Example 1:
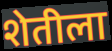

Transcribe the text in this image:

शेतीला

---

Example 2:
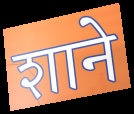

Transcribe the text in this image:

शाने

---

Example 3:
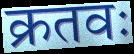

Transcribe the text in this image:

क्रतवः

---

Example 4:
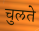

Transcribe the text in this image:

चुलते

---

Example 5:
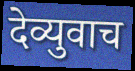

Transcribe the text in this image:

देव्युवाच